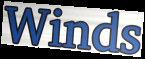
Winds